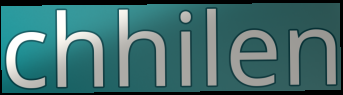
chhilen